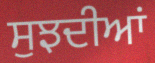
ਸੁਝਦੀਆਂ